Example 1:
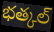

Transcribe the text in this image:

భత్కల్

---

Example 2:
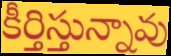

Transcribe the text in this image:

కీర్తిస్తున్నావు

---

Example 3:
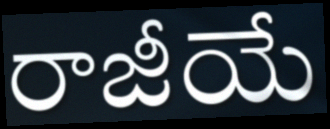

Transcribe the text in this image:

రాజీయే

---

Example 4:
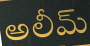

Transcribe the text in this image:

అలీమ్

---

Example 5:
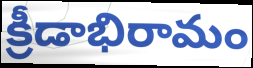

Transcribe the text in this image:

క్రీడాభిరామం